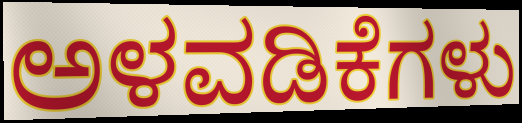
ಅಳವಡಿಕೆಗಳು